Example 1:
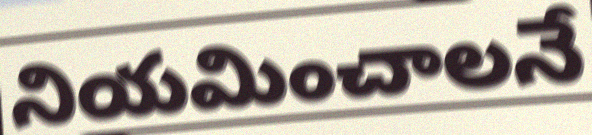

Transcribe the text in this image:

నియమించాలనే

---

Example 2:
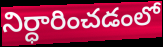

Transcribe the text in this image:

నిర్ధారించడంలో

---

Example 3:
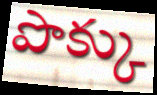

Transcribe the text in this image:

పొక్కు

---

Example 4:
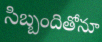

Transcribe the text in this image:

సిబ్బందితోనూ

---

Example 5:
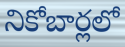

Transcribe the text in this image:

నికోబార్లలో